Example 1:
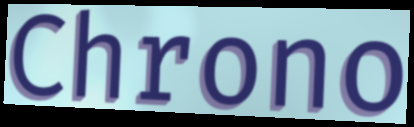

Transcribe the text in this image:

Chrono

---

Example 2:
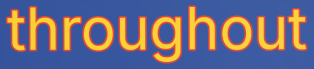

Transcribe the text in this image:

throughout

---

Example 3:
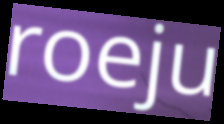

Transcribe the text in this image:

roeju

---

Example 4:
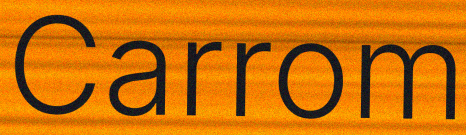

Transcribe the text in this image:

Carrom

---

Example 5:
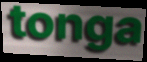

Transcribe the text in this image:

tonga